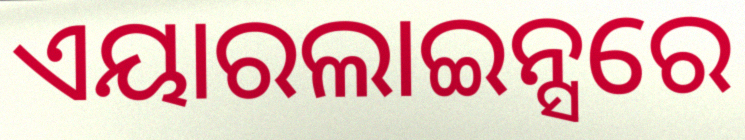
ଏୟାରଲାଇନ୍ସରେ